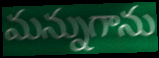
మన్నుగాను